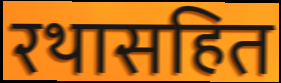
रथासहित